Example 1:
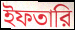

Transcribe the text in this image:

ইফতারি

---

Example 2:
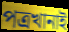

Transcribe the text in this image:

পত্রখানাই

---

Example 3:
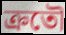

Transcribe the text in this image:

ক্রতৌ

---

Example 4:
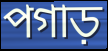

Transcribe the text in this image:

পগাড়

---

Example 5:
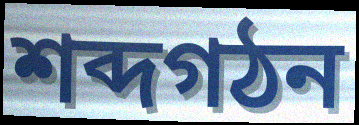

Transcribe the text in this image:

শব্দগঠন